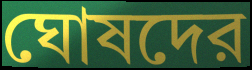
ঘোষদের